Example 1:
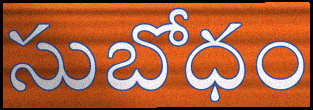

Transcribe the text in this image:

సుబోధం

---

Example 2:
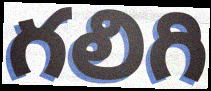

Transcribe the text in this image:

గలిగి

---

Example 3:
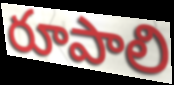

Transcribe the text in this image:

రూపాలి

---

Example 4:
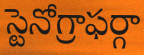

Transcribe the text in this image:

స్టెనోగ్రాఫర్గా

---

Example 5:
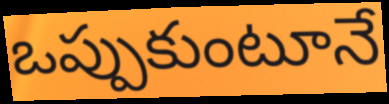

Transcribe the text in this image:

ఒప్పుకుంటూనే